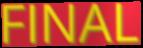
FINAL